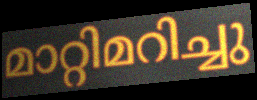
മാറ്റിമറിച്ചു